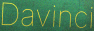
Davinci